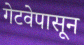
गेटवेपासून